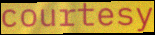
courtesy